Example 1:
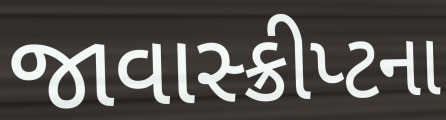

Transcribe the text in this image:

જાવાસ્ક્રીપ્ટના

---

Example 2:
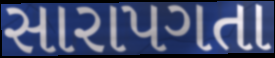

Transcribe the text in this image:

સારાપગતા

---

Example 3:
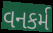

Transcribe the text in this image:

વનકર્મ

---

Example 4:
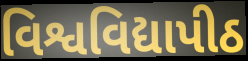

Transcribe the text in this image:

વિશ્વવિદ્યાપીઠ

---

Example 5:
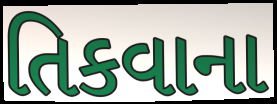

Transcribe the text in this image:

તિકવાના